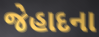
જેહાદના